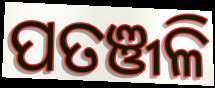
ପତଞ୍ଜଳି